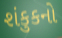
શંકુકનો